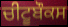
ਚੀਟੂਬੌਕਸ